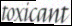
toxicant